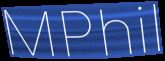
MPhil